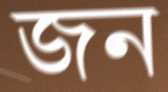
জন